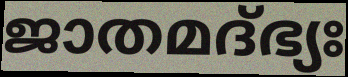
ജാതമദ്ഭ്യഃ